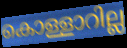
കൊള്ളാറില്ല